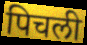
पिचली